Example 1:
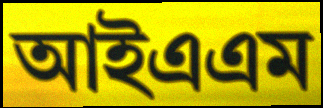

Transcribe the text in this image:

আইএএম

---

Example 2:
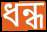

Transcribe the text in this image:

ধন্ধ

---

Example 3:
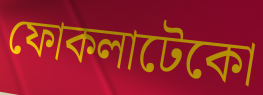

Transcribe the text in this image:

ফোকলাটেকো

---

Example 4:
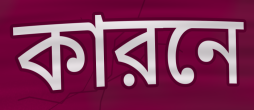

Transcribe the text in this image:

কারনে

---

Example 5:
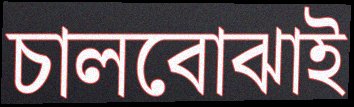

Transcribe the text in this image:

চালবোঝাই